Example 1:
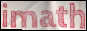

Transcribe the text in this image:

imath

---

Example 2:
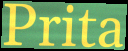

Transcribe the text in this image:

Prita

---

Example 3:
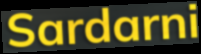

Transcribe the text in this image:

Sardarni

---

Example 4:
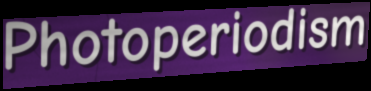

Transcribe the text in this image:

Photoperiodism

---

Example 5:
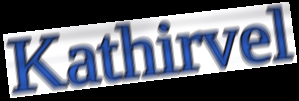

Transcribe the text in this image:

Kathirvel